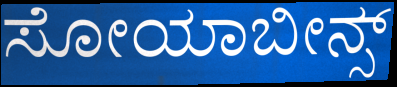
ಸೋಯಾಬೀನ್ಸ್